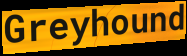
Greyhound